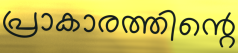
പ്രാകാരത്തിന്റെ